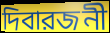
দিবারজনী